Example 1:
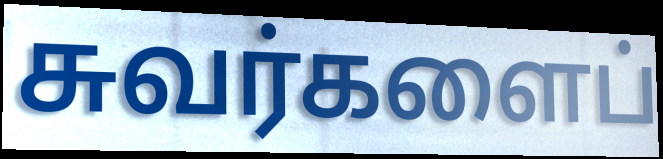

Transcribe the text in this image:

சுவர்களைப்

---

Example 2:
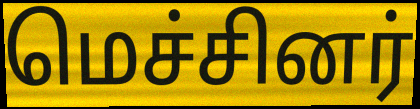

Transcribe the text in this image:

மெச்சினர்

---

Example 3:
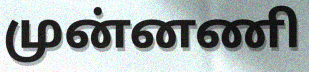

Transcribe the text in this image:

முன்னணி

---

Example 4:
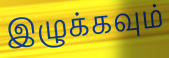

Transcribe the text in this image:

இழுக்கவும்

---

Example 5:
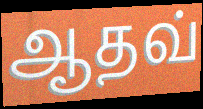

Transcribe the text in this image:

ஆதவ்